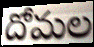
దోమల